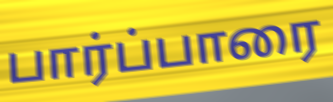
பார்ப்பாரை